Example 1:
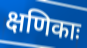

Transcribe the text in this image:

क्षणिकाः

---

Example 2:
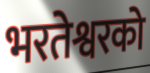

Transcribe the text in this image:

भरतेश्वरको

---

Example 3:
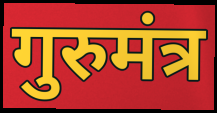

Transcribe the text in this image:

गुरुमंत्र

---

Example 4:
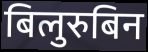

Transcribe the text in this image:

बिलुरुबिन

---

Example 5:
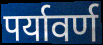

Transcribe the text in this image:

पर्यावर्ण